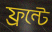
ফ্রন্টে